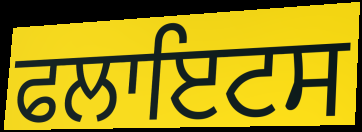
ਫਲਾਇਟਸ